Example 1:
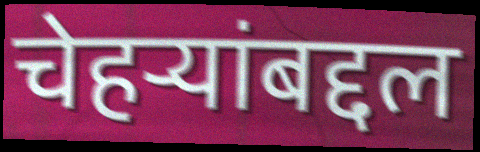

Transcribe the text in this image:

चेहऱ्यांबद्दल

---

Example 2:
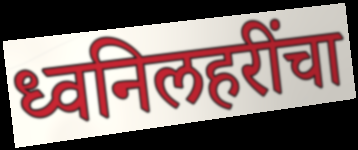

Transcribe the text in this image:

ध्वनिलहरींचा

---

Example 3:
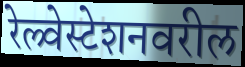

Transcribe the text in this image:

रेल्वेस्टेशनवरील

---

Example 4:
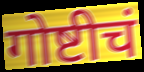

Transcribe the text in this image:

गोष्टीचं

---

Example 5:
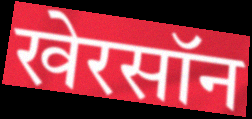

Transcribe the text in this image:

खेरसॉन